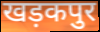
खड़कपुर